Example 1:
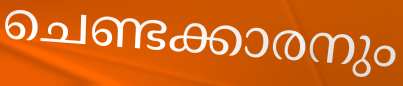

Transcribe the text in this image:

ചെണ്ടക്കാരനും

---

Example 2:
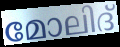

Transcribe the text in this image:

മോലിദ്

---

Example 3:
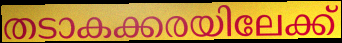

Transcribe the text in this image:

തടാകക്കരയിലേക്ക്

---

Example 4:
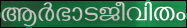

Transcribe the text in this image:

ആർഭാടജീവിതം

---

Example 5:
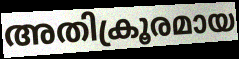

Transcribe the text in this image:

അതിക്രൂരമായ